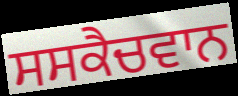
ਸਸਕੈਚਵਾਨ